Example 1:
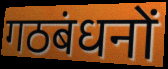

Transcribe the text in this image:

गठबंधनों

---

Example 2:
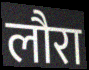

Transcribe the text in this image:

लौरा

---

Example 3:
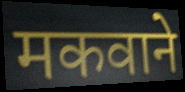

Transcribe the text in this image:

मकवाने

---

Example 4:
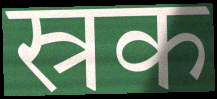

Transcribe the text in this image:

स्रक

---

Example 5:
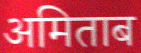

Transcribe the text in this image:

अमिताब